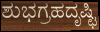
ಶುಭಗ್ರಹದೃಷ್ಟಿ